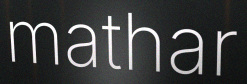
mathar